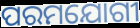
ପରମଯୋଗୀ